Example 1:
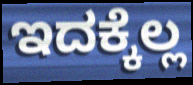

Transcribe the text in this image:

ಇದಕ್ಕೆಲ್ಲ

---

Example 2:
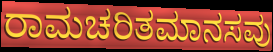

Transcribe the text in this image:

ರಾಮಚರಿತಮಾನಸವು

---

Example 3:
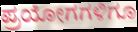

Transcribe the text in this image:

ಪ್ರಯೋಗಗಳಿಗೂ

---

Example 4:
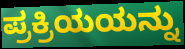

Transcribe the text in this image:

ಪ್ರಕ್ರಿಯಯನ್ನು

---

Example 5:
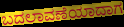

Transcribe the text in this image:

ಬದಲಾವಣೆಯಾದಾಗ